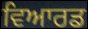
ਵਿਆਰਡ